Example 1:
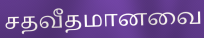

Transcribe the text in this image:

சதவீதமானவை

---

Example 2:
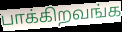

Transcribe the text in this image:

பாக்கிறவங்க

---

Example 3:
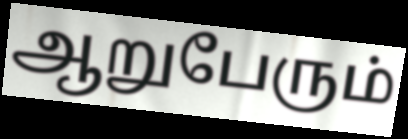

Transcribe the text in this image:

ஆறுபேரும்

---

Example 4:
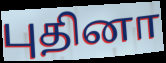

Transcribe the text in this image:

புதினா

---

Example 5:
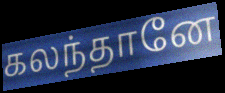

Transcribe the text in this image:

கலந்தானே